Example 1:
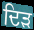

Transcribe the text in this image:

ਦਿੜ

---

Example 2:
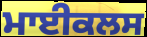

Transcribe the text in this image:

ਮਾਈਕਲਸ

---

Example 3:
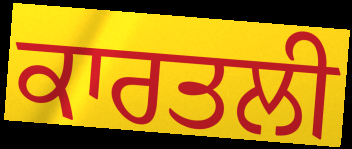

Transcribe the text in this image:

ਕਾਰਤਲੀ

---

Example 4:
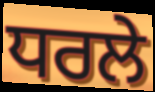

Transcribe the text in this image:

ਧਰਲੇ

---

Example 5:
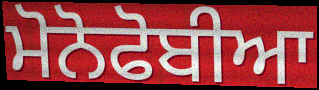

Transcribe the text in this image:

ਮੋਨੋਫੋਬੀਆ